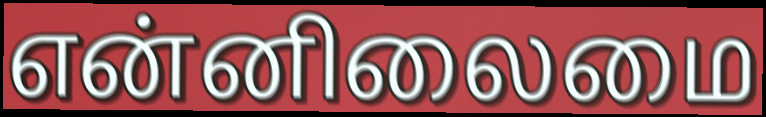
என்னிலைமை